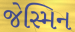
જેસ્મિન